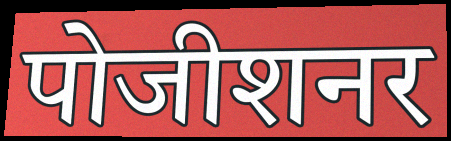
पोजीशनर